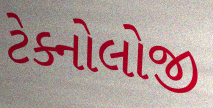
ટેક્નોલોજી